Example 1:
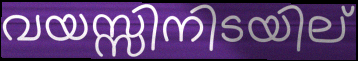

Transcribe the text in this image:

വയസ്സിനിടയില്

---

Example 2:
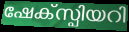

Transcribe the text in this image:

ഷേക്സ്പിയറി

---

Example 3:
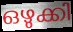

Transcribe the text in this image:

ഒഴുക്കി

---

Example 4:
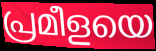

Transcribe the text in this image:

പ്രമീളയെ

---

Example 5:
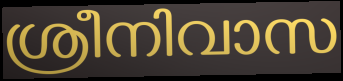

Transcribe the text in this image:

ശ്രീനിവാസ